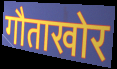
गौताखोर